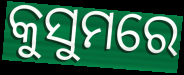
କୁସୁମରେ